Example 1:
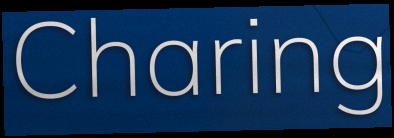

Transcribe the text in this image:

Charing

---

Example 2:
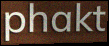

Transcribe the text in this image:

phakt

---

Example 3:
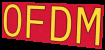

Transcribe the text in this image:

OFDM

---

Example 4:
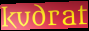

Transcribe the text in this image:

kudrat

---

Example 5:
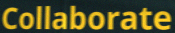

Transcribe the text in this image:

Collaborate